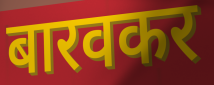
बारवकर